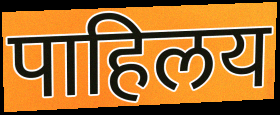
पाहिलय